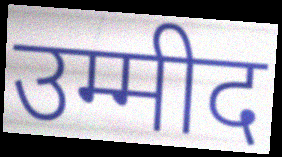
उम्मीद